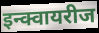
इन्क्वायरीज